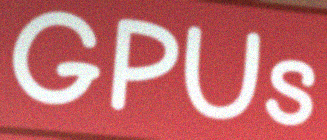
GPUs